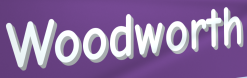
Woodworth